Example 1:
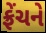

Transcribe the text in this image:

ફ્રેંચને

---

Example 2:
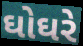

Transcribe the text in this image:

ઘોઘરે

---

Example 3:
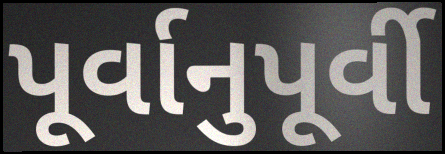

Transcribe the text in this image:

પૂર્વાનુપૂર્વી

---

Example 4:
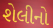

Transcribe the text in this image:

શેલીનો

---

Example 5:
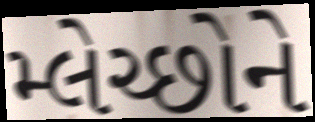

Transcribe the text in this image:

મ્લેચ્છોને